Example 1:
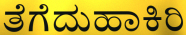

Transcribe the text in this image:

ತೆಗೆದುಹಾಕಿರಿ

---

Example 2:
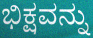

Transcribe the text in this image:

ಭಿಕ್ಷವನ್ನು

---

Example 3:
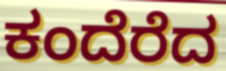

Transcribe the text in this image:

ಕಂದೆರೆದ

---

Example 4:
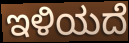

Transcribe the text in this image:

ಇಳಿಯದೆ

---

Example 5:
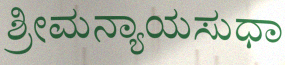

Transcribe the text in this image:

ಶ್ರೀಮನ್ಯಾಯಸುಧಾ